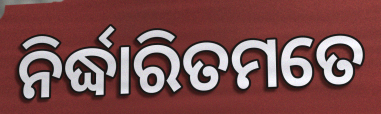
ନିର୍ଦ୍ଧାରିତମତେ